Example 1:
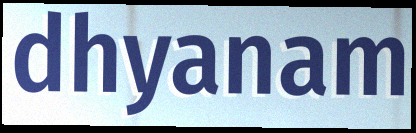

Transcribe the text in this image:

dhyanam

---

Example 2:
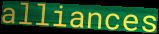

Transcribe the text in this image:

alliances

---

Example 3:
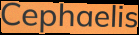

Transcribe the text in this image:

Cephaelis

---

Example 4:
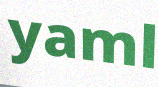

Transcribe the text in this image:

yaml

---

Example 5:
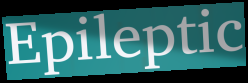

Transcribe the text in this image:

Epileptic